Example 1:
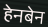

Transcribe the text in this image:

हेनबेन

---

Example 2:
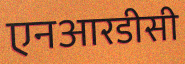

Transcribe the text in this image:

एनआरडीसी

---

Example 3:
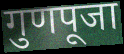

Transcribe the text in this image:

गुणपूजा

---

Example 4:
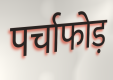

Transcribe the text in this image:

पर्चाफोड़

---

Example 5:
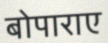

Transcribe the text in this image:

बोपाराए